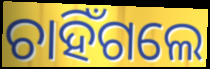
ଚାହିଁଗଲେ